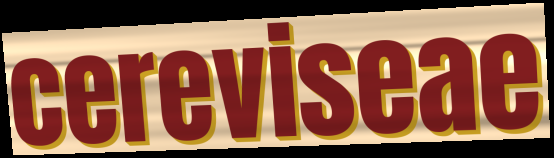
cereviseae